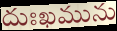
దుఃఖమును